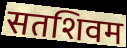
सतशिवम